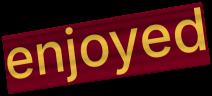
enjoyed